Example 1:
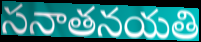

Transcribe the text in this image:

సనాతనయతి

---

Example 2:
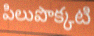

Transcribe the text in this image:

పిలుపొక్కటి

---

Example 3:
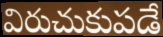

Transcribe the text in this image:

విరుచుకుపడే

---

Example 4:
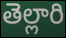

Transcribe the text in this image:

తెల్లారి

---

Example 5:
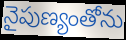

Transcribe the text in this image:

నైపుణ్యంతోను